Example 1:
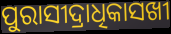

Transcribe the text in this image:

ପୁରାସୀଦ୍ରାଧିକାସଖୀ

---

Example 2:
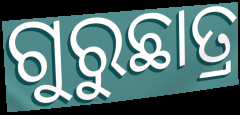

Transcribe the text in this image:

ଗୁରୁଛାତ୍ର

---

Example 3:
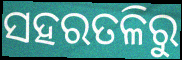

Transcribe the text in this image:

ସହରତଳିରୁ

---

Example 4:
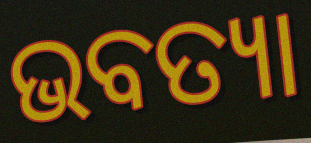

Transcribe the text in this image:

ଭବତ୍ୟା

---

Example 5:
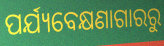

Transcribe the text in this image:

ପର୍ଯ୍ୟବେକ୍ଷଣାଗାରରୁ